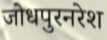
जोधपुरनरेश